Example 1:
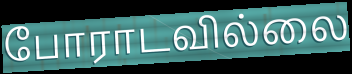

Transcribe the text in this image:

போராடவில்லை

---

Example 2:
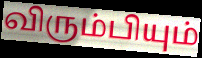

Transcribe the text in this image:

விரும்பியும்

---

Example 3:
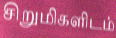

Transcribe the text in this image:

சிறுமிகளிடம்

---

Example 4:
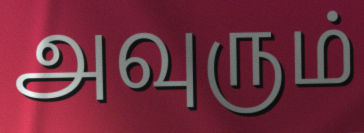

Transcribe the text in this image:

அவுரும்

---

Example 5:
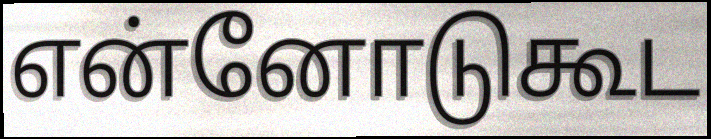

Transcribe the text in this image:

என்னோடுகூட